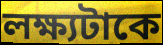
লক্ষ্যটাকে